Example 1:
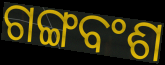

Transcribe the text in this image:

ଗଙ୍ଗବଂଶ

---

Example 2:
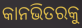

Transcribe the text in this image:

କାନଭିତରକୁ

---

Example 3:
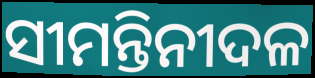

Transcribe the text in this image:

ସୀମନ୍ତିନୀଦଳ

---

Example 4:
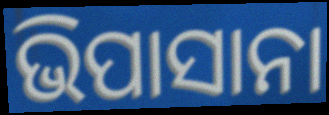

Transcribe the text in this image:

ଭିପାସାନା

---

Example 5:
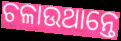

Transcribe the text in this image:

ଚଳାଉଥାନ୍ତେ